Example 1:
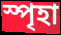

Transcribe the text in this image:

স্পৃহা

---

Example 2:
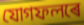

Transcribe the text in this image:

যোগফলৰে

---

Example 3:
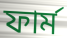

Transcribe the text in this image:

ফাৰ্ম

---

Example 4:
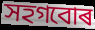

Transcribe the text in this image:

সহগবোৰ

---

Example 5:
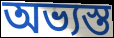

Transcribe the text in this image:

অভ্যস্ত